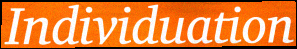
Individuation